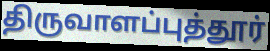
திருவாளப்புத்தூர்